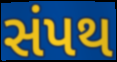
સંપથ